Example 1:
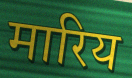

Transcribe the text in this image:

मारिय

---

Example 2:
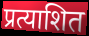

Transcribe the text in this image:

प्रत्याशित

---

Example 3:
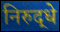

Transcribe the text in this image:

निरुद्धे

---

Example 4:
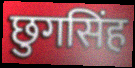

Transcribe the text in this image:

छुगसिंह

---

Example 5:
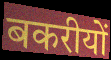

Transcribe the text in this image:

बकरीयों